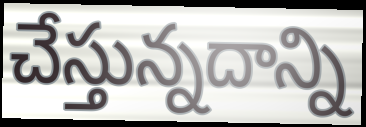
చేస్తున్నదాన్ని